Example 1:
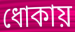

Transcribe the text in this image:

ধোকায়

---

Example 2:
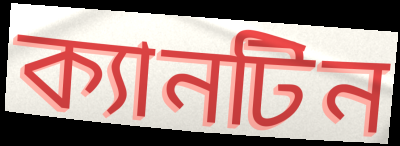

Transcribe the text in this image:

ক্যানটিন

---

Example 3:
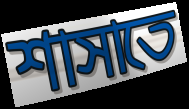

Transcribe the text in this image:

শাসাতে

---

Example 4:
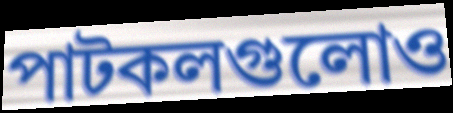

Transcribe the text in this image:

পাটকলগুলোও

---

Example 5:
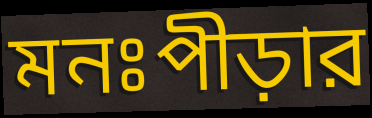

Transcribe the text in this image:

মনঃপীড়ার